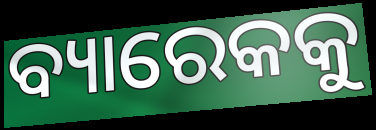
ବ୍ୟାରେକକୁ